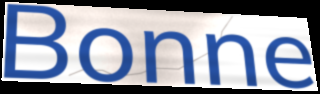
Bonne